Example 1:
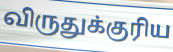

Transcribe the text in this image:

விருதுக்குரிய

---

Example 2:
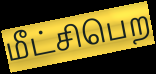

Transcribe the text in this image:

மீட்சிபெற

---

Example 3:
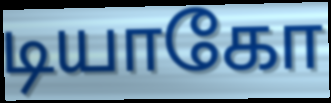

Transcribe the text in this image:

டியாகோ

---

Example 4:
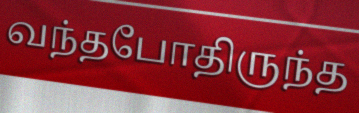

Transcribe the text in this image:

வந்தபோதிருந்த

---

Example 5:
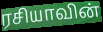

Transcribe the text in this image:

ரசியாவின்